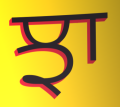
ਝਾ